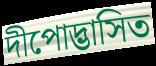
দীপোদ্ভাসিত